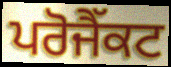
ਪਰੋਜੈੱਕਟ